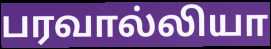
பரவால்லியா